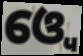
ଓ୍ବେ